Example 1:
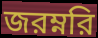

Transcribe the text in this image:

জরম্নরি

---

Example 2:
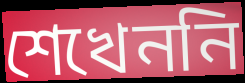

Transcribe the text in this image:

শেখেননি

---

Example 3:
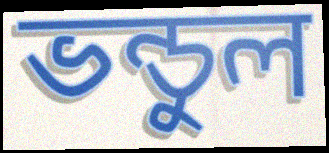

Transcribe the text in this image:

ভন্ডুল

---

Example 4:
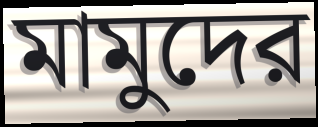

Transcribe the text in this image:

মামুদের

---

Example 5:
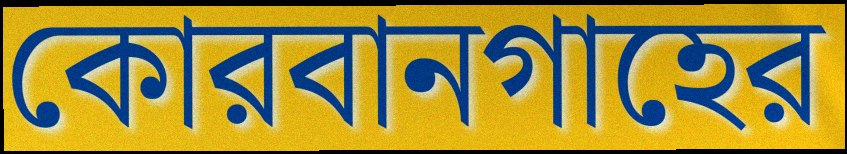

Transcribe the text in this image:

কোরবানগাহের